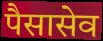
पैसासेव